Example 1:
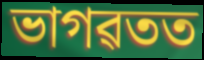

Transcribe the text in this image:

ভাগৱতত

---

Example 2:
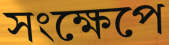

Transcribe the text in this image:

সংক্ষেপে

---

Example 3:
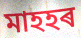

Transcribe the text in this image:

মাহহৰ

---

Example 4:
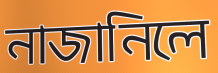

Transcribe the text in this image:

নাজানিলে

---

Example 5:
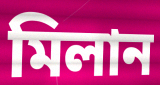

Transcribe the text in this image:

মিলান